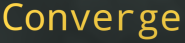
Converge